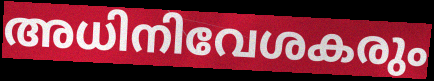
അധിനിവേശകരും